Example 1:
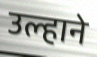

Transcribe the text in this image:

उल्हाने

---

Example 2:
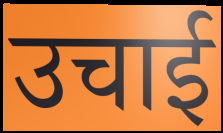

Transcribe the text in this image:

उचाई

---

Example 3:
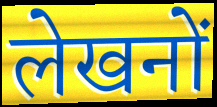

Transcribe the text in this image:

लेखनों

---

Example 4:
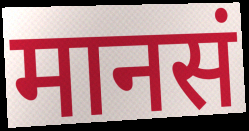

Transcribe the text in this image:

मानसं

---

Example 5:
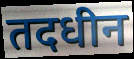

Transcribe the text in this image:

तदधीन